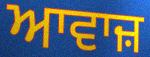
ਆਵਾਜ਼